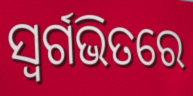
ସ୍ଵର୍ଗଭିତରେ